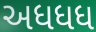
અધધધ